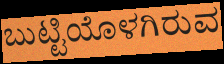
ಬುಟ್ಟಿಯೊಳಗಿರುವ